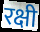
रक्षी